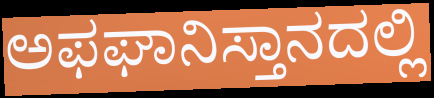
ಅಫಘಾನಿಸ್ತಾನದಲ್ಲಿ